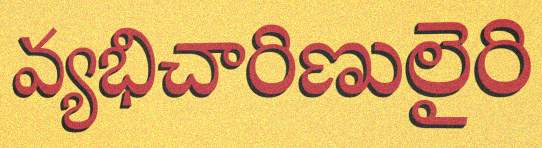
వ్యభిచారిణులైరి